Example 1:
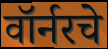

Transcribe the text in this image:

वॉर्नरचे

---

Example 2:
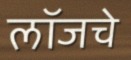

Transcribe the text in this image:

लॉजचे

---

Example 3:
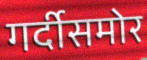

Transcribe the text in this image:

गर्दीसमोर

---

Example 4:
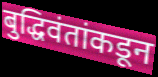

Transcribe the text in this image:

बुद्धिवंतांकडून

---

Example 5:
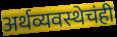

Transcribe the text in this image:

अर्थव्यवस्थेचंही